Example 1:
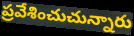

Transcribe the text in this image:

ప్రవేశించుచున్నారు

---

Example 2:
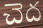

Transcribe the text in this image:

చెద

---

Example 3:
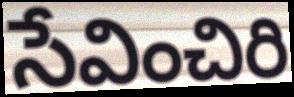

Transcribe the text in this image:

సేవించిరి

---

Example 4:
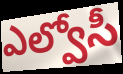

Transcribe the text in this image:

ఎల్వోసీ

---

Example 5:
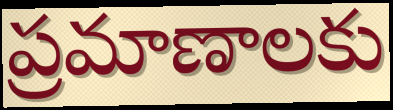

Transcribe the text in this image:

ప్రమాణాలకు